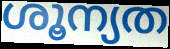
ശൂന്യത